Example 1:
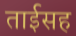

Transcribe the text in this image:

ताईसह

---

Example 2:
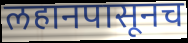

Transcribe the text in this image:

लहानपासूनच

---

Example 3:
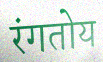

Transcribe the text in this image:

रंगतोय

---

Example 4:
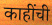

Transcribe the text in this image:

काहींची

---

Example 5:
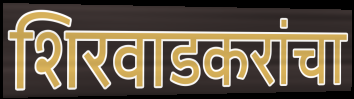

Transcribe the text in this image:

शिरवाडकरांचा